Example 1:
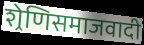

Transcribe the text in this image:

श्रेणिसमाजवादी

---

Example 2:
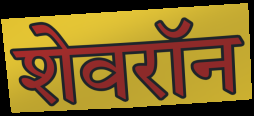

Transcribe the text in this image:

शेवरॉन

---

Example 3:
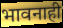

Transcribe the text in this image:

भावनाही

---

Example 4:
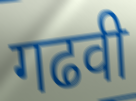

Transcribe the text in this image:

गढवी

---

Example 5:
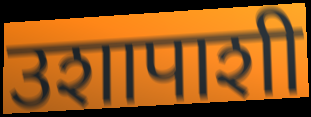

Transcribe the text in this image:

उशापाशी